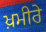
ਖ਼ਮੀਰੇ